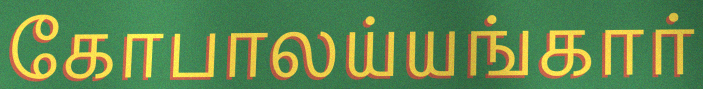
கோபாலய்யங்கார்